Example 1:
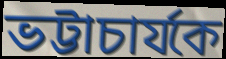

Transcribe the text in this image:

ভট্টাচার্যকে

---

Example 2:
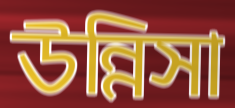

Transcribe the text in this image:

উন্নিসা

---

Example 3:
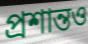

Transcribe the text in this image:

প্রশান্তও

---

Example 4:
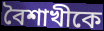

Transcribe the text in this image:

বৈশাখীকে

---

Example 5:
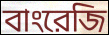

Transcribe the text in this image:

বাংরেজি